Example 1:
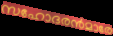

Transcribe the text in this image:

സഹോദരൻമാരേ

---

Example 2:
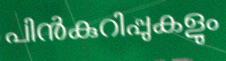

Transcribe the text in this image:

പിൻകുറിപ്പുകളും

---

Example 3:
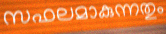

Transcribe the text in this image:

സഫലമാകുന്നതും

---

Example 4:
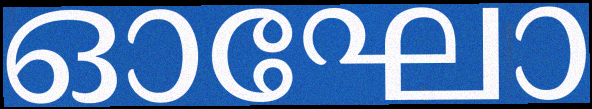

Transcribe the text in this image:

ഓഘോ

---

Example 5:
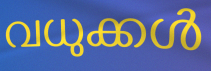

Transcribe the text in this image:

വധുക്കൾ